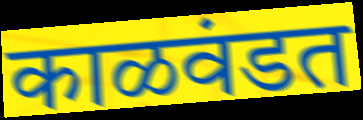
काळवंडत